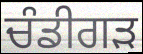
ਚੰਡੀਗੜ